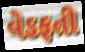
વેડફતી